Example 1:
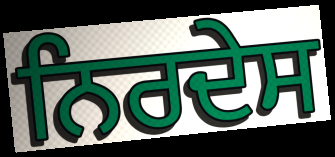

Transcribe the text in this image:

ਨਿਰਦੇਸ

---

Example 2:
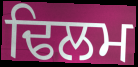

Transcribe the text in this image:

ਢਿਲਮ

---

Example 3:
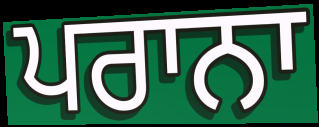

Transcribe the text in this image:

ਪਰਾਨਾ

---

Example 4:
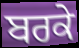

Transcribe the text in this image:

ਬਰਕੇ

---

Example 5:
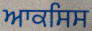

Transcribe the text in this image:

ਆਕਸਿਸ